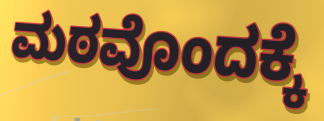
ಮಠವೊಂದಕ್ಕೆ